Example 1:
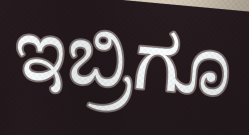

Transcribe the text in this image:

ಇಬ್ರಿಗೂ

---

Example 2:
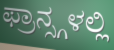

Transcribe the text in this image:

ಫ್ರಾನ್ಸ್ಗಳಲ್ಲಿ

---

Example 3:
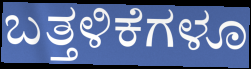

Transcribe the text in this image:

ಬತ್ತಳಿಕೆಗಳೂ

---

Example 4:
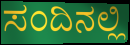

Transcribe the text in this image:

ಸಂದಿನಲ್ಲಿ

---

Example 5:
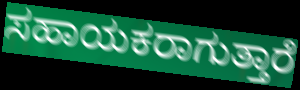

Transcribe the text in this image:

ಸಹಾಯಕರಾಗುತ್ತಾರೆ